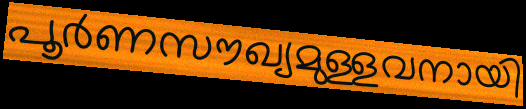
പൂർണസൗഖ്യമുള്ളവനായി